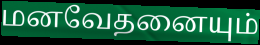
மனவேதனையும்